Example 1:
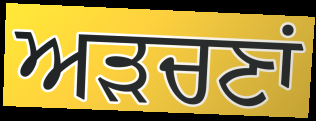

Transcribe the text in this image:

ਅੜਚਣਾਂ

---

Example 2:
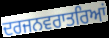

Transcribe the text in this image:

ਦਰਜਨਵਰਾਤਰਿਆਂ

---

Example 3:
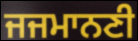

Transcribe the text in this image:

ਜਜਮਾਨਣੀ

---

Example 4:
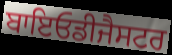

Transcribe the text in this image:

ਬਾਇਓਡੀਜੈਸਟਰ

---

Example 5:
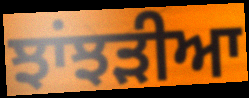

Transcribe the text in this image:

ਝਾਂਝੜੀਆ